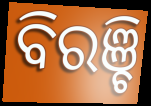
ବିରଞ୍ଚି